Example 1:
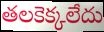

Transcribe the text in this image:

తలకెక్కలేదు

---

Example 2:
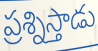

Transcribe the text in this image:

ప్రశ్నిస్తాడు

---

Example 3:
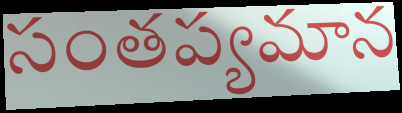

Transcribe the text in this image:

సంతప్యమాన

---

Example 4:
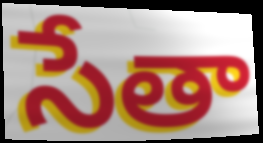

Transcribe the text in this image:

సేతా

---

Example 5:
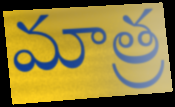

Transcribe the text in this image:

మాత్ర